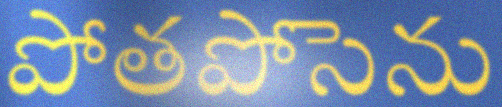
పోతపోసెను